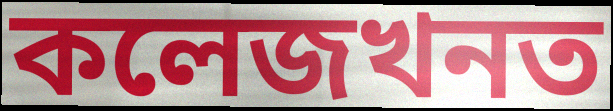
কলেজখনত